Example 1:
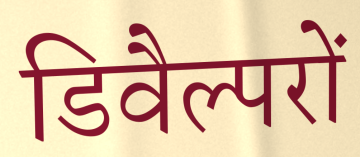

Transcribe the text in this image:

डिवैल्परों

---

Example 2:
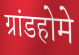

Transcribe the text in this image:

ग्रांडहोमे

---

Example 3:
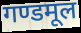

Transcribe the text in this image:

गण्डमूल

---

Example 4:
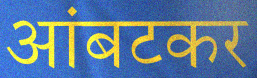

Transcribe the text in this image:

आंबटकर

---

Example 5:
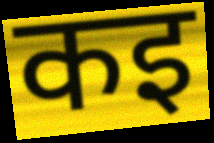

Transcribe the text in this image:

कइ